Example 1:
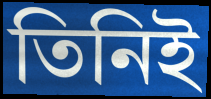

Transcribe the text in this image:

তিনিই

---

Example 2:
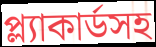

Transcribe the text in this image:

প্ল্যাকার্ডসহ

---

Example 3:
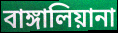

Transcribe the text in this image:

বাঙ্গালিয়ানা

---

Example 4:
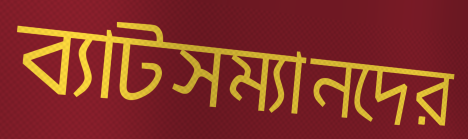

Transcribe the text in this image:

ব্যাটসম্যানদের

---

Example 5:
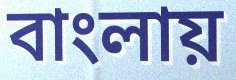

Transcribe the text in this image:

বাংলায়